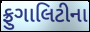
ફ્રુગાલિટીના